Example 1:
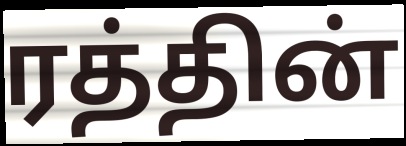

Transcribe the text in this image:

ரத்தின்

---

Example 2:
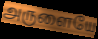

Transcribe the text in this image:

அருளையே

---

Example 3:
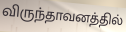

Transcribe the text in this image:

விருந்தாவனத்தில்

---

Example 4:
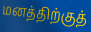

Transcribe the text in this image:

மனத்திற்குத்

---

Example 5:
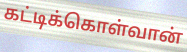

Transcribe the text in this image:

கட்டிக்கொள்வான்